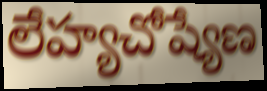
లేహ్యచోష్యేణ